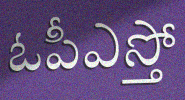
ఓపీఎస్తో